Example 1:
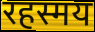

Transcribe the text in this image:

रहस्मय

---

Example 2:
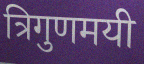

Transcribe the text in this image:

त्रिगुणमयी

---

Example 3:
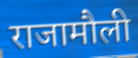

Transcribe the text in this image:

राजामौली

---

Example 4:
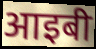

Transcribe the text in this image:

आइबी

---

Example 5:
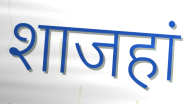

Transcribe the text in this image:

शाजहां